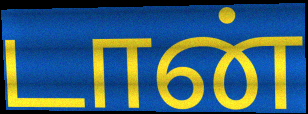
டான்